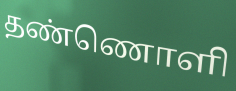
தண்ணொளி